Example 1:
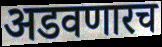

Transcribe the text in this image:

अडवणारच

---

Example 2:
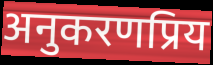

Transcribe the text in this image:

अनुकरणप्रिय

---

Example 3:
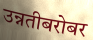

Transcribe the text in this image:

उन्नतीबरोबर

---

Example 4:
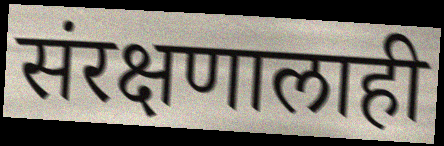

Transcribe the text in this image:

संरक्षणालाही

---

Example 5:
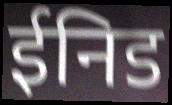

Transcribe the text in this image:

ईनिड